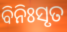
ବିନିଃସୃତ